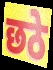
छठे